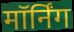
मॉर्निंग